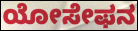
ಯೋಸೇಫನ